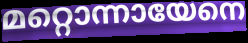
മറ്റൊന്നായേനെ